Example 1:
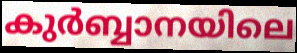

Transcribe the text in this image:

കുർബ്ബാനയിലെ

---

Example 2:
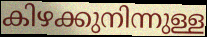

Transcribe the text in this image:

കിഴക്കുനിന്നുള്ള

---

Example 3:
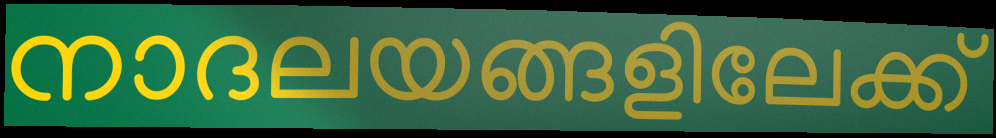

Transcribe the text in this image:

നാദലയങ്ങളിലേക്ക്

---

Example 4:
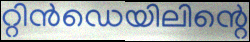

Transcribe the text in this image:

റ്റിൻഡെയിലിന്റെ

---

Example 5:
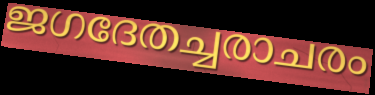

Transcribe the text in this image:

ജഗദേതച്ചരാചരം